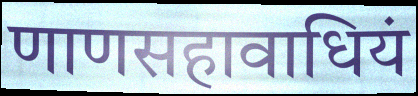
णाणसहावाधियं